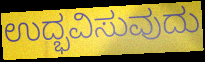
ಉದ್ಭವಿಸುವುದು